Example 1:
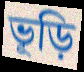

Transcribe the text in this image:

ভূড়ি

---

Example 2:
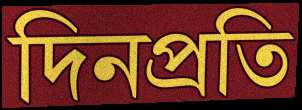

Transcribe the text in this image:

দিনপ্রতি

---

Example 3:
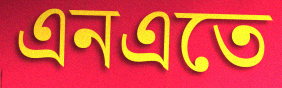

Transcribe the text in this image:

এনএতে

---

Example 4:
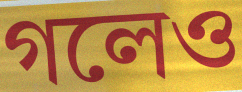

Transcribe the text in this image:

গলেও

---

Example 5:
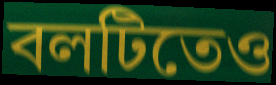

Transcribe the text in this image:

বলটিতেও